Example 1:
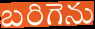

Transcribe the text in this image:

బరిగెను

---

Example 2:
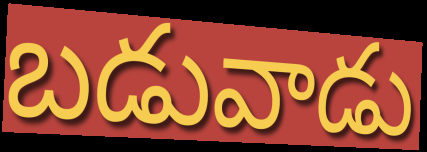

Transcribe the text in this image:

బడువాడు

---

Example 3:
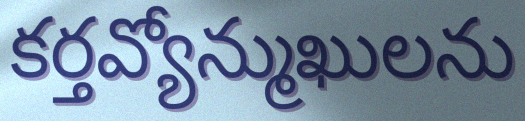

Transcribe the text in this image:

కర్తవ్యోన్ముఖులను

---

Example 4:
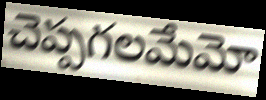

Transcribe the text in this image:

చెప్పగలమేమో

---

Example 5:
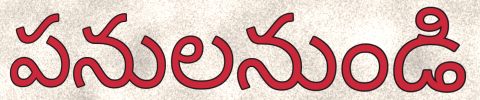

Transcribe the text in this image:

పనులనుండి